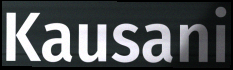
Kausani